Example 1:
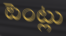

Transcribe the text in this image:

టెంట్లు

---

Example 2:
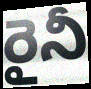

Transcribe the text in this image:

రైనీ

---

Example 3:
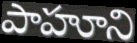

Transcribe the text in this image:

పాహూని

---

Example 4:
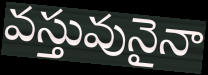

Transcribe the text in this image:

వస్తువునైనా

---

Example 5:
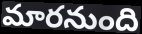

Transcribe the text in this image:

మారనుంది